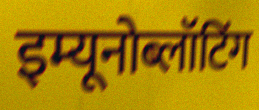
इम्यूनोब्लॉटिंग